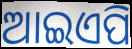
ଆଇଏପି